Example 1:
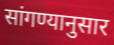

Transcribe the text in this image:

सांगण्यानुसार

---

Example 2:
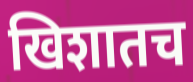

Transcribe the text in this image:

खिशातच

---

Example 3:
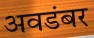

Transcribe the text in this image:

अवडंबर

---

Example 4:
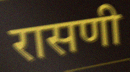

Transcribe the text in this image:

रासणी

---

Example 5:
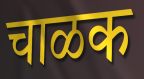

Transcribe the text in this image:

चाळक